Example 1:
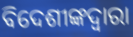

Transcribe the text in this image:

ବିଦେଶୀଙ୍କଦ୍ୱାରା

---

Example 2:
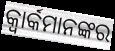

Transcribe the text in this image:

କ୍ୱାର୍କମାନଙ୍କର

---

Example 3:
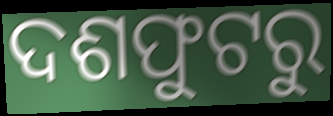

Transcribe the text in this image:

ଦଶଫୁଟରୁ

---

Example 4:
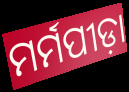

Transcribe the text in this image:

ମର୍ମପୀଡ଼ା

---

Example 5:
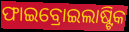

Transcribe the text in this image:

ଫାଇବ୍ରୋଇଲାଷ୍ଟିକ